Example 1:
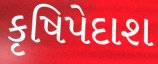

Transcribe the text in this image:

કૃષિપેદાશ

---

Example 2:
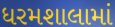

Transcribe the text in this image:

ધરમશાલામાં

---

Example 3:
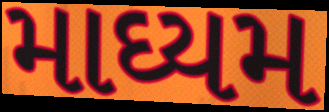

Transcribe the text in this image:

માઘ્યમ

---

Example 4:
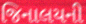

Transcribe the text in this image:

જિનાલયની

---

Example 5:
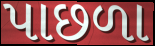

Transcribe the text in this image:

પાછળા